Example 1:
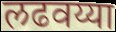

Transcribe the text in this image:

लढवय्या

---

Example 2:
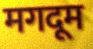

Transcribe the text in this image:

मगदूम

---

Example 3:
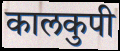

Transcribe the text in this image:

कालकुपी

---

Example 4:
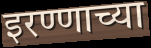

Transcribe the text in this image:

इरण्णाच्या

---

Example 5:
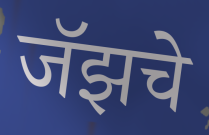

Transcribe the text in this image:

जॅझचे